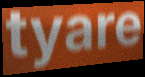
tyare